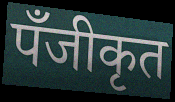
पँजीकृत